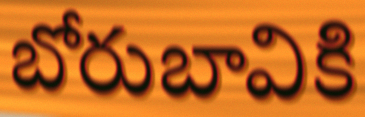
బోరుబావికి